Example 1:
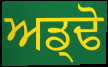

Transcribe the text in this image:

ਅਡ੍ਢੋ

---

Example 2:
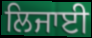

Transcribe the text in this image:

ਲਿਜਾਈ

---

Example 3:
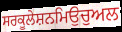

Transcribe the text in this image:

ਸਰਕੂਲੇਸ਼ਨਮਿਉਚੁਅਲ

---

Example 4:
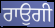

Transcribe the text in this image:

ਰਾਉਗੀ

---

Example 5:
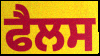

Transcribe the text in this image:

ਫੈਲਸ